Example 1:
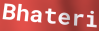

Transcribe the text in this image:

Bhateri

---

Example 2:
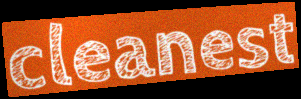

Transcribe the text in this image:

cleanest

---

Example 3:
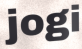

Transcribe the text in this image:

jogi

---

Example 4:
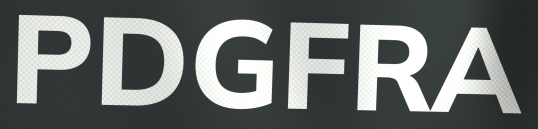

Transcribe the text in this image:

PDGFRA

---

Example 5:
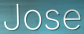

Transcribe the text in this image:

Jose